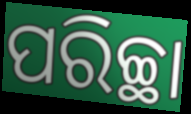
ପରିଚ୍ଛା